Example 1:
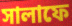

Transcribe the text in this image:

সালাফে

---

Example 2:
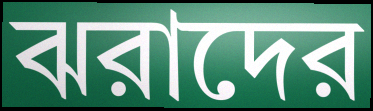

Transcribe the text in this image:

ঝরাদের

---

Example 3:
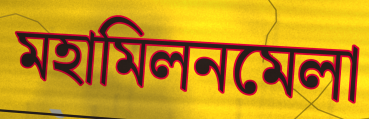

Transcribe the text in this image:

মহামিলনমেলা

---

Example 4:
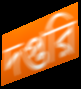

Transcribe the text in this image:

দপ্তরি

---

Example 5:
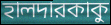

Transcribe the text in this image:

হালদারকাকু